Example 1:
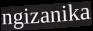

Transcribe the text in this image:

ngizanika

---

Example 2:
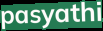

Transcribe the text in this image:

pasyathi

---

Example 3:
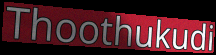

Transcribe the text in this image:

Thoothukudi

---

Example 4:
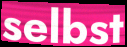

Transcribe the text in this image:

selbst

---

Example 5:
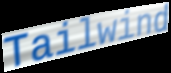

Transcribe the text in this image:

Tailwind